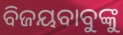
ବିଜୟବାବୁଙ୍କୁ